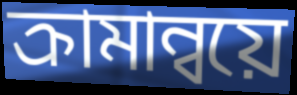
ক্রামান্বয়ে